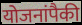
योजनांपैकी